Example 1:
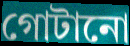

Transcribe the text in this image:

গোটানো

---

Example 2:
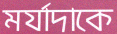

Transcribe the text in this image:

মর্যাদাকে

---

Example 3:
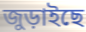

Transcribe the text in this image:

জুড়াইছে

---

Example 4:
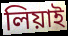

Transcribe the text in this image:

লিয়াই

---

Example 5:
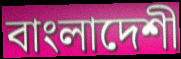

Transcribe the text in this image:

বাংলাদেশী